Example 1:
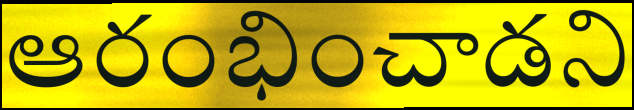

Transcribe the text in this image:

ఆరంభించాడని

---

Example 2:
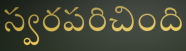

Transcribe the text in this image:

స్వరపరిచింది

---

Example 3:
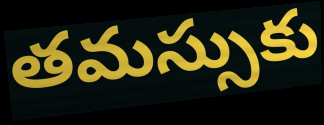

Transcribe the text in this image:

తమస్సుకు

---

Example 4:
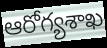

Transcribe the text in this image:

ఆరోగ్యశాఖ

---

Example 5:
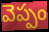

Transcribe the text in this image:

వెప్పం